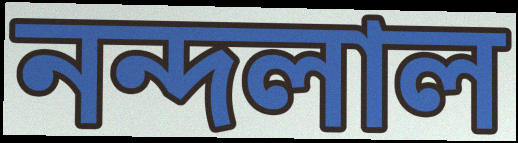
নন্দলাল